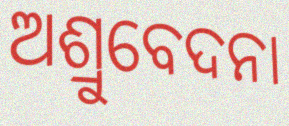
ଅଶ୍ରୁବେଦନା